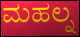
ಮಹಲ್ನ